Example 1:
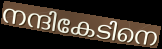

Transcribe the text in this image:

നന്ദികേടിനെ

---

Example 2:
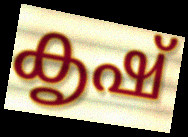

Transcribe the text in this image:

കൃഷ്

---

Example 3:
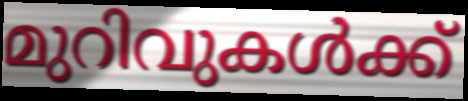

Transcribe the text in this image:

മുറിവുകൾക്ക്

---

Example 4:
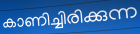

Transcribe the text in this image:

കാണിച്ചിരിക്കുന്ന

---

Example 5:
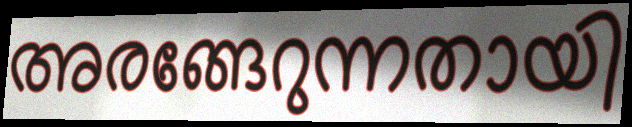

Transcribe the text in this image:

അരങ്ങേറുന്നതായി